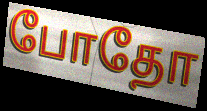
போதோ